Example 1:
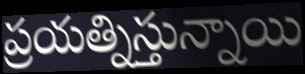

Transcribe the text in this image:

ప్రయత్నిస్తున్నాయి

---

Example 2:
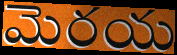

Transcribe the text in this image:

మెరయ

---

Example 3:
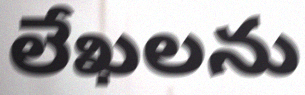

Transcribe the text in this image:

లేఖలను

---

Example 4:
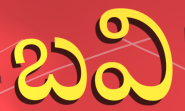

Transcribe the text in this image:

బవి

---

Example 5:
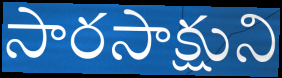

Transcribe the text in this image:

సారసాక్షుని